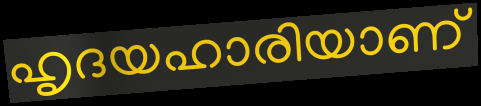
ഹൃദയഹാരിയാണ്